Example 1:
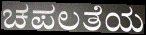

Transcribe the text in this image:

ಚಪಲತೆಯ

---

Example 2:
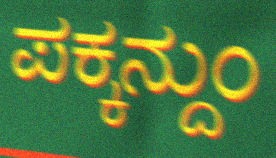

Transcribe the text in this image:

ಪಕ್ಕನ್ದುಂ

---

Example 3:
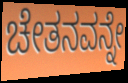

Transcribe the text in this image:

ಚೇತನವನ್ನೇ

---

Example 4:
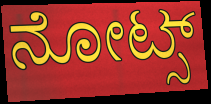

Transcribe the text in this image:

ನೋಟ್ಸ್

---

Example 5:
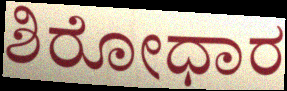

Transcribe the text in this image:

ಶಿರೋಧಾರ